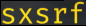
sxsrf